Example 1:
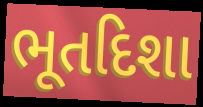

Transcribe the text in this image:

ભૂતદિશા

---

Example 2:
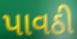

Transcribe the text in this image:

પાવઠી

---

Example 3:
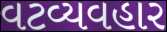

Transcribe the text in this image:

વટવ્યવહાર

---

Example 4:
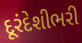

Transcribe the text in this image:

દૂરંદેશીભરી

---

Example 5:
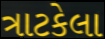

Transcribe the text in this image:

ત્રાટકેલા